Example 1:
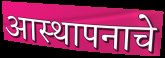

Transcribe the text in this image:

आस्थापनाचे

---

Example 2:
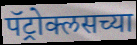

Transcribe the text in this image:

पॅट्रोक्लसच्या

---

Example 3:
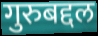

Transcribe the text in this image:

गुरुबद्दल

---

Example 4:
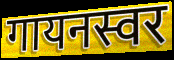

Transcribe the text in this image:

गायनस्वर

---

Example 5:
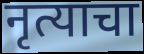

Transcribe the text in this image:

नृत्याचा